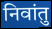
निवांतु